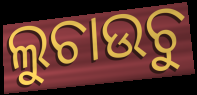
ଲୁଚାଉଚୁ